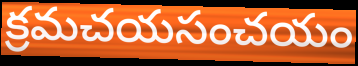
క్రమచయసంచయం